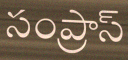
సంప్రాస్